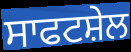
ਸਾਫਟਸ਼ੇਲ